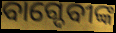
ବାଗ୍ଦେବୀଙ୍କ